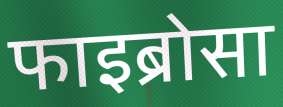
फाइब्रोसा